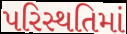
પરિસ્થતિમાં